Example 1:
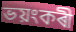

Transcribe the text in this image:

ভয়ংকৰী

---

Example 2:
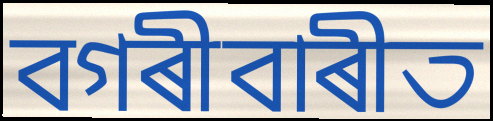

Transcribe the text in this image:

বগৰীবাৰীত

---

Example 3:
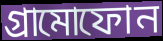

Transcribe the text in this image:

গ্ৰামোফোন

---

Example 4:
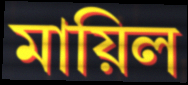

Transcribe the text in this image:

মায়িল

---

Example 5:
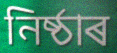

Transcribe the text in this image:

নিষ্ঠাৰ